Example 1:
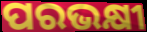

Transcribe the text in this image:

ପରଭକ୍ଷୀ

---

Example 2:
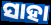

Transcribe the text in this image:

ସାହା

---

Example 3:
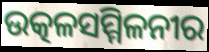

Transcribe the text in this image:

ଉତ୍କଳସମ୍ମିଳନୀର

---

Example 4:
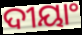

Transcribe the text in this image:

ଦୀୟାଂ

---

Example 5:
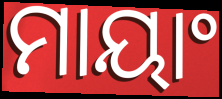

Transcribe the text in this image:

ମାୟାଂ